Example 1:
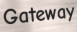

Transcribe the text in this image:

Gateway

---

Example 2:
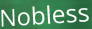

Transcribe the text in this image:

Nobless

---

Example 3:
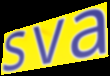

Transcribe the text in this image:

sva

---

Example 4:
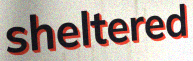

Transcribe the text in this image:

sheltered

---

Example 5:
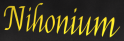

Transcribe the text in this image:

Nihonium